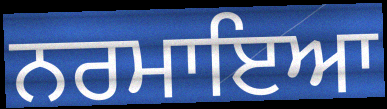
ਨਰਮਾਇਆ